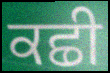
ਕਛੀ